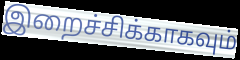
இறைச்சிக்காகவும்